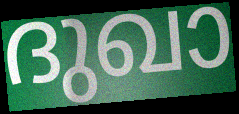
ദുഖാ